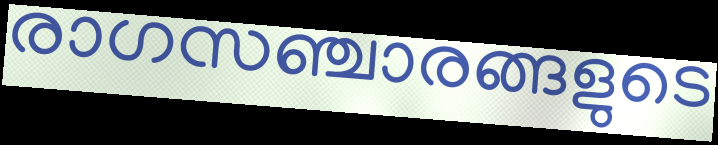
രാഗസഞ്ചാരങ്ങളുടെ